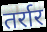
तर्रार